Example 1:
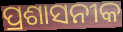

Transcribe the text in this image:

ପ୍ରଶାସନୀକ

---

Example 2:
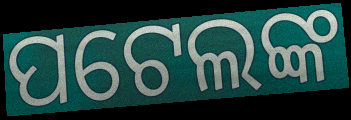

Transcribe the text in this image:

ପଟେଲଙ୍କ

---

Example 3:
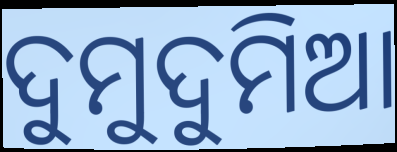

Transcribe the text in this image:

ଦୁମୁଦୁମିଆ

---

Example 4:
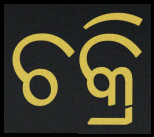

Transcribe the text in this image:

ଚକ୍ରି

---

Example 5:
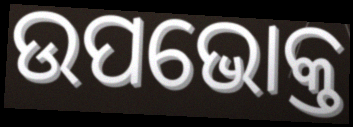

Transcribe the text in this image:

ଉପଭୋକ୍ତ